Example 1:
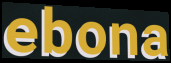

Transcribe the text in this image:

ebona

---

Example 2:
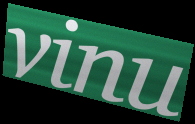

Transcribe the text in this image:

vinu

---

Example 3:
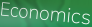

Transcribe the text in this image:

Economics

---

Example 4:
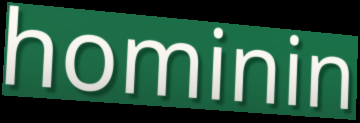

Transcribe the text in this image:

hominin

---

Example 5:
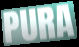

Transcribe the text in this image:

PURA